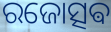
ରଜୋତ୍ସଵ